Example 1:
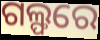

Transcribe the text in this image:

ଗଲ୍ଫରେ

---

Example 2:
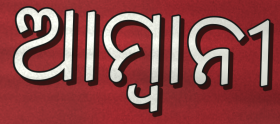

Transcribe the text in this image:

ଆମ୍ବାନୀ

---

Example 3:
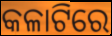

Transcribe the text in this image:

କଳାଟିରେ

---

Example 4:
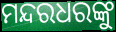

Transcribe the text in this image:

ମନ୍ଦରଧରଙ୍କୁ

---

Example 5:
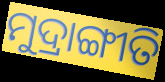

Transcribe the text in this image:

ମୁଦ୍ରାଙ୍ଗୀତି